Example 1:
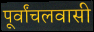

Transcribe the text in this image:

पूर्वांचलवासी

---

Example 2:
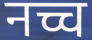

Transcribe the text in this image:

नच्च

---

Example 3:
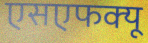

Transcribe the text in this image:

एसएफक्यू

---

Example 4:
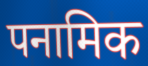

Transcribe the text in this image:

पनामिक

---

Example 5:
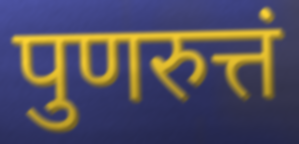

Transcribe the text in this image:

पुणरुत्तं